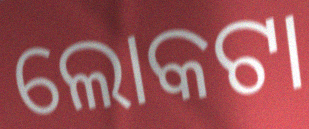
ଲୋକଟା